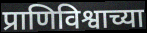
प्राणिविश्वाच्या